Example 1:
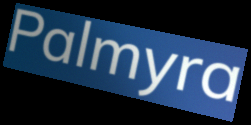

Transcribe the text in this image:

Palmyra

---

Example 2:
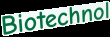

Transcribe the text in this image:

Biotechnol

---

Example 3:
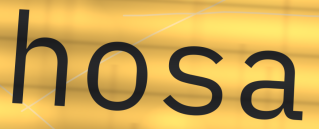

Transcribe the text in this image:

hosa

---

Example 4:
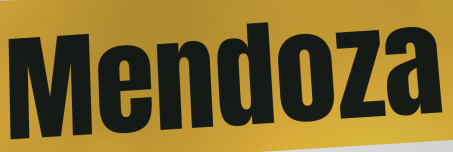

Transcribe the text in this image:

Mendoza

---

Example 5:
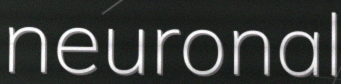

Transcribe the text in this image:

neuronal